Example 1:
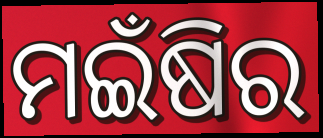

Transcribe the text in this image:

ମଇଁଷିର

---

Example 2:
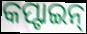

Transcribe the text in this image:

କପ୍ଟାଇନ୍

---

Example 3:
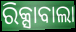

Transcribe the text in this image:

ରିକ୍ସାବାଲା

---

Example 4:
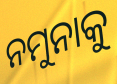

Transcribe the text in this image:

ନମୁନାକୁ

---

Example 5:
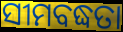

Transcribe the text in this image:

ସୀମବଦ୍ଧତା